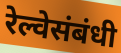
रेल्वेसंबंधी